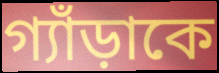
গ্যাঁড়াকে